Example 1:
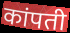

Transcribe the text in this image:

कांपती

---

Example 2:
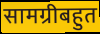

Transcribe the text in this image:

सामग्रीबहुत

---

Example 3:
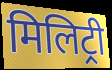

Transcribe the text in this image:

मिलिट्री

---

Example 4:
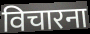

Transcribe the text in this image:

विचारना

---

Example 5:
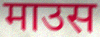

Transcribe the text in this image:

माउस